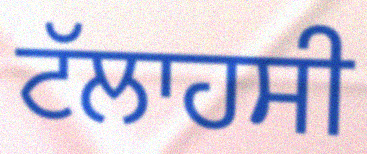
ਟੱਲਾਹਸੀ